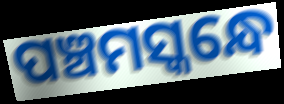
ପଞ୍ଚମସ୍କନ୍ଧେ